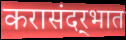
करासंदर्भात